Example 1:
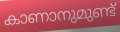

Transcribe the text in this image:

കാണാനുമുണ്ട്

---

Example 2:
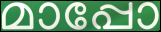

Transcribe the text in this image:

മാപ്പോ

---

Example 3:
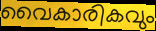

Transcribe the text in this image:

വൈകാരികവും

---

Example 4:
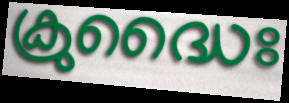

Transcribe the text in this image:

ക്രുദ്ധൈഃ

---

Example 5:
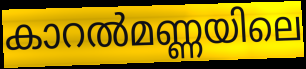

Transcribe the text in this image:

കാറൽമണ്ണയിലെ